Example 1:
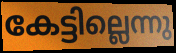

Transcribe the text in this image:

കേട്ടില്ലെന്നു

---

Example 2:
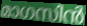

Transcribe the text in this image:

മാഗസിൻ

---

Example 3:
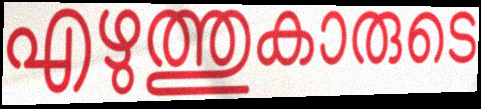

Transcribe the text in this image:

എഴുത്തുകാരുടെ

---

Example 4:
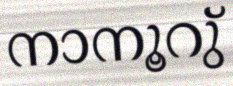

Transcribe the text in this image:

നാനൂറു്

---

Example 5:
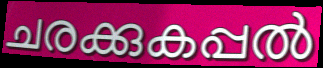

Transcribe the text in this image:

ചരക്കുകപ്പൽ